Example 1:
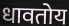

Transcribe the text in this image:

धावतोय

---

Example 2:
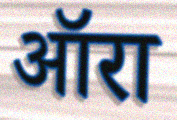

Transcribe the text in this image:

ऑरा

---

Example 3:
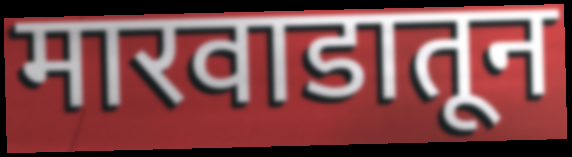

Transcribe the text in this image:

मारवाडातून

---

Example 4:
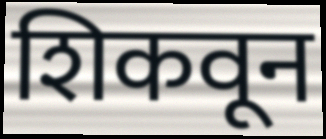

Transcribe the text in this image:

शिकवून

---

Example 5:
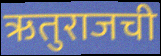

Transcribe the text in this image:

ऋतुराजची